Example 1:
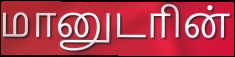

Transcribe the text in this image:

மானுடரின்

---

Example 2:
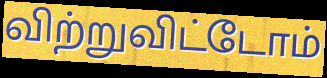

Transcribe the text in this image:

விற்றுவிட்டோம்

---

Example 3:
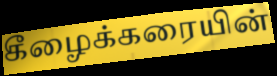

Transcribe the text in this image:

கீழைக்கரையின்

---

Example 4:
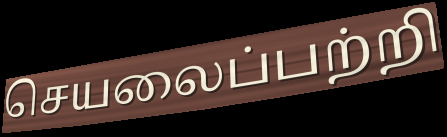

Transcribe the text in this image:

செயலைப்பற்றி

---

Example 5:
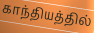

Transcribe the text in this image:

காந்தியத்தில்